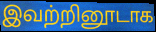
இவற்றினூடாக